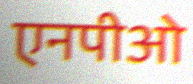
एनपीओ